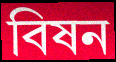
বিষন